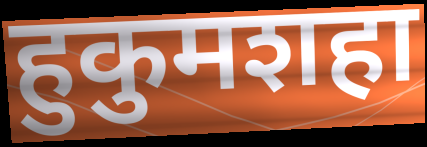
हुकुमशहा